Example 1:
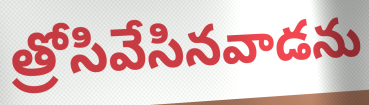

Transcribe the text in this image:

త్రోసివేసినవాడను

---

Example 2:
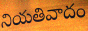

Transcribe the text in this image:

నియతివాదం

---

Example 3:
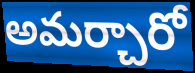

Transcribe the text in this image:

అమర్చారో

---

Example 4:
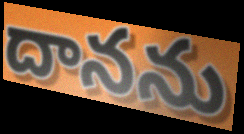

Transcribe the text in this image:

దానను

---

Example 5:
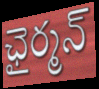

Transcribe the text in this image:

ఛైర్మన్